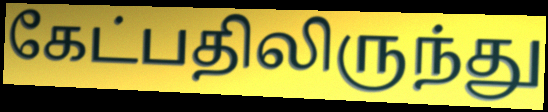
கேட்பதிலிருந்து